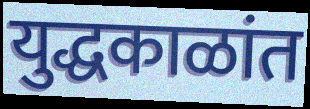
युद्धकाळांत